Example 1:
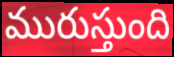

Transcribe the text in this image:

మురుస్తుంది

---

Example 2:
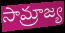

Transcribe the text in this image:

సామ్రాజ్య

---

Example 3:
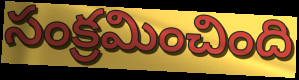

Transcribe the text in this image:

సంక్రమించింది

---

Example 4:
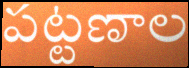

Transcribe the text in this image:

పట్టణాల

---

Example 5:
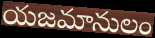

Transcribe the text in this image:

యజమానులం